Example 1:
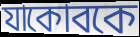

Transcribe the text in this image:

যাকোবকে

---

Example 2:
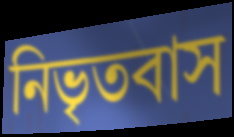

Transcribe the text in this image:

নিভৃতবাস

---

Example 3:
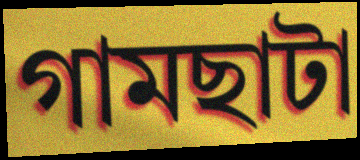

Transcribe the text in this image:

গামছাটা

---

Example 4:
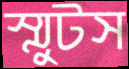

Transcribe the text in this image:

স্মুটস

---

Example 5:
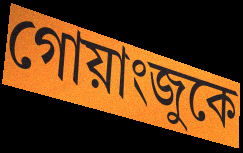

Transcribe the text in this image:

গোয়াংজুকে